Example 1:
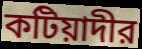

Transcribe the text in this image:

কটিয়াদীর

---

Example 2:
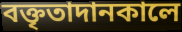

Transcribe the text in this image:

বক্তৃতাদানকালে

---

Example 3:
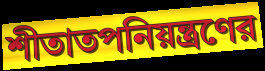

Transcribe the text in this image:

শীতাতপনিয়ন্ত্রণের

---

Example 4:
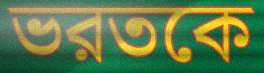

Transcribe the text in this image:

ভরতকে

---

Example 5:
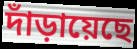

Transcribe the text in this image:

দাঁড়ায়েছে